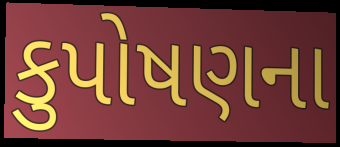
કુપોષણના